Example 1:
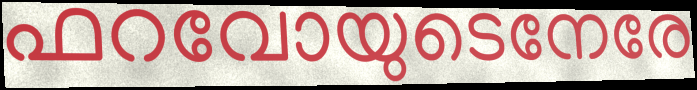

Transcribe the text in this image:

ഫറവോയുടെനേരേ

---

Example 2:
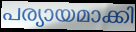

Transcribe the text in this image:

പര്യായമാക്കി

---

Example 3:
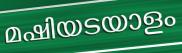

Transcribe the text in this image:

മഷിയടയാളം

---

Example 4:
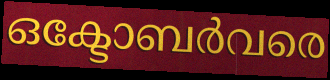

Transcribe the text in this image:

ഒക്ടോബർവരെ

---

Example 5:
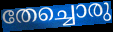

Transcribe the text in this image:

തേച്ചൊരു